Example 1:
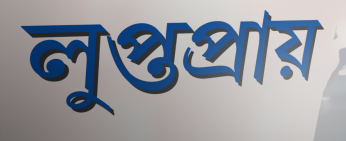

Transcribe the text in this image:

লুপ্তপ্ৰায়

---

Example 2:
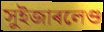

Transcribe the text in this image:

সুইজাৰলেণ্ড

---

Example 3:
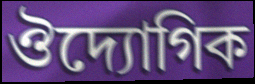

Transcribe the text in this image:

ঔদ্যোগিক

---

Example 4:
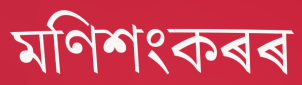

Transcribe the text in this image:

মণিশংকৰৰ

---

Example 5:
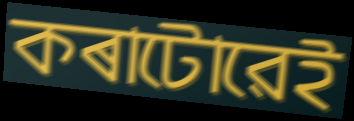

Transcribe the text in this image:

কৰাটোৱেই